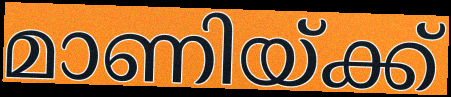
മാണിയ്ക്ക്